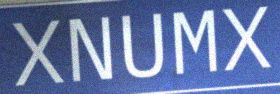
XNUMX